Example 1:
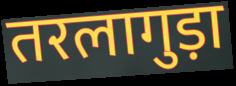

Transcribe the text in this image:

तरलागुड़ा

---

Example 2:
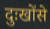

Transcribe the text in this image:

दुःखोंसे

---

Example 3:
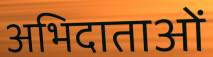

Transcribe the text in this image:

अभिदाताओं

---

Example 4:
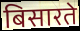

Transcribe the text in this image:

बिसारते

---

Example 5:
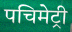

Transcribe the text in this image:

पचिमेट्री